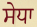
ਸੇਧਾ